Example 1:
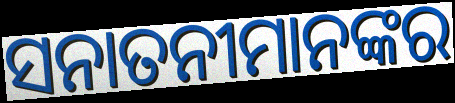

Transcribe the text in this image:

ସନାତନୀମାନଙ୍କର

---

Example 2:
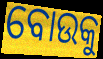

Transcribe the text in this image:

ବୋଉକୁ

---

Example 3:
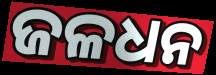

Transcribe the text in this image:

ଜଳଧନ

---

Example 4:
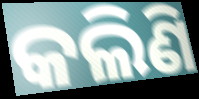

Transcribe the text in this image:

କଲିଣି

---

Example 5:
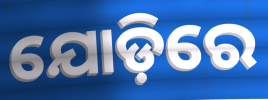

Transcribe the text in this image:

ଯୋଡ଼ିରେ